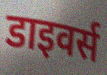
डाइवर्स